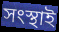
সংস্থাই